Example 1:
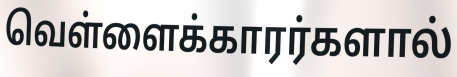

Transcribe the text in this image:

வெள்ளைக்காரர்களால்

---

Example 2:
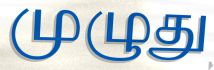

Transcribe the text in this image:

முழுது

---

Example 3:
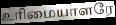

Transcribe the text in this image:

உரிமையாளரே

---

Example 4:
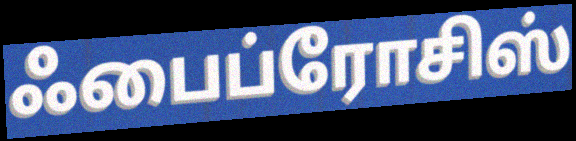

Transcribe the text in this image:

ஃபைப்ரோசிஸ்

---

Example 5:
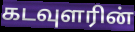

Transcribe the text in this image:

கடவுளரின்